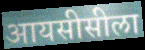
आयसीसीला